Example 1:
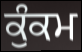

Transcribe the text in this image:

ਕੁੰਕਮ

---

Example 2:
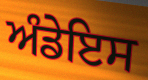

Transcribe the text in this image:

ਅੰਡੇਇਸ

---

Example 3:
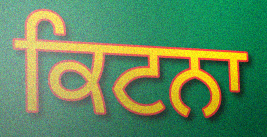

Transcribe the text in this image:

ਕਿਟਨਾ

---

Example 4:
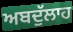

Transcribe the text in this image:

ਅਬਦੁੱਲਾਹ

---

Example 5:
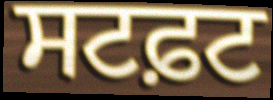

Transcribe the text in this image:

ਸਟਫ਼ਟ